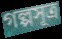
গল্পসূত্র